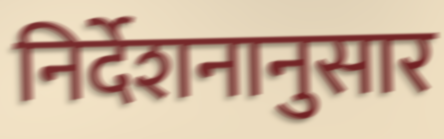
निर्देशनानुसार